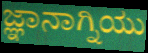
ಜ್ಞಾನಾಗ್ನಿಯು